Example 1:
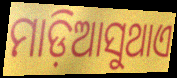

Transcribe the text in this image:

ମାଡ଼ିଆସୁଥାଏ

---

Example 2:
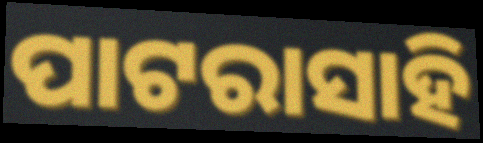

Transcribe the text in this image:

ପାଟରାସାହି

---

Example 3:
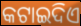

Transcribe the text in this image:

କଟାଇଦିଏ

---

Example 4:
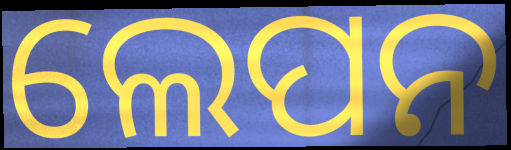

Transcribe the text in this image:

ଲେପନ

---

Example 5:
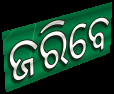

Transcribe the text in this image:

ଜରିବେ